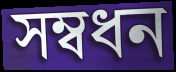
সম্বধন